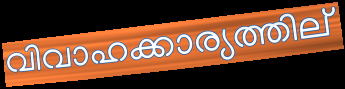
വിവാഹക്കാര്യത്തില്